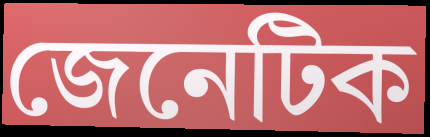
জেনেটিক